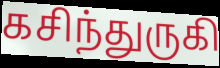
கசிந்துருகி